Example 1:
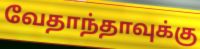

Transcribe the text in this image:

வேதாந்தாவுக்கு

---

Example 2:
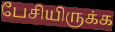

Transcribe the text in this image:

பேசியிருக்க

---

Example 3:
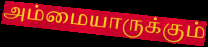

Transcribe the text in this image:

அம்மையாருக்கும்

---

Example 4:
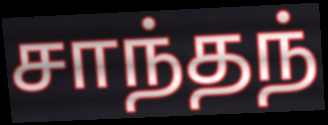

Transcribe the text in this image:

சாந்தந்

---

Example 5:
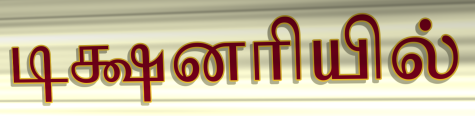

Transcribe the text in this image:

டிக்ஷனரியில்